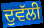
ਦੁਵੱਲੀ